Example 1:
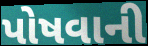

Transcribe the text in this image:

પોષવાની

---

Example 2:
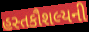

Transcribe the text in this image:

હસ્તકૌશલ્યની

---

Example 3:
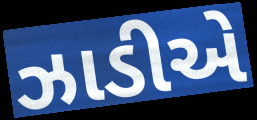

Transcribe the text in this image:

ઝાડીએ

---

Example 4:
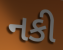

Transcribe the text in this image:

નકી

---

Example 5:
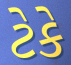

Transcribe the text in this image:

ટેકે